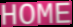
HOME